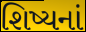
શિષ્યનાં